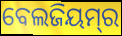
ବେଲଜିୟମ୍‌ର